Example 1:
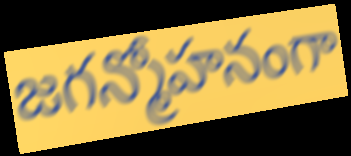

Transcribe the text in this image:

జగన్మోహనంగా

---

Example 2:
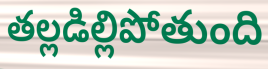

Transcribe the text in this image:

తల్లడిల్లిపోతుంది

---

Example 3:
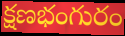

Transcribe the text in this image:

క్షణభంగురం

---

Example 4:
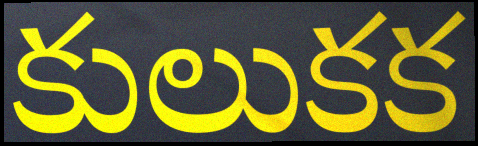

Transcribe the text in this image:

కులుకక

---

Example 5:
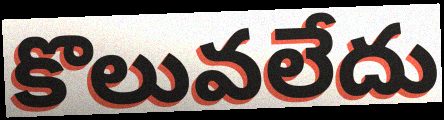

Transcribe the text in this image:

కొలువలేదు